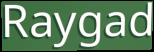
Raygad